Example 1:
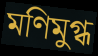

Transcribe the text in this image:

মণিমুগ্ধ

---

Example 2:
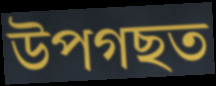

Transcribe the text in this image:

উপগছত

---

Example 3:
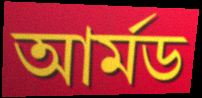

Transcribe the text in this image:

আৰ্মড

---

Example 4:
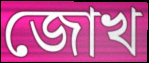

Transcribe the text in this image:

জোখ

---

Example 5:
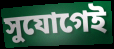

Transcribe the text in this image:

সুযোগেই